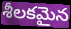
శీలకమైన